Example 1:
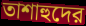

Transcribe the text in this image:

তাশাহুদের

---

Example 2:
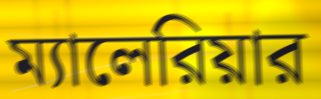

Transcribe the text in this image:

ম্যালেরিয়ার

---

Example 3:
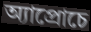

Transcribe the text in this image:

অ্যাপ্রোচে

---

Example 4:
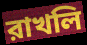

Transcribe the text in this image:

রাখলি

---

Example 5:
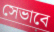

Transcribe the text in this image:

সেভাবে